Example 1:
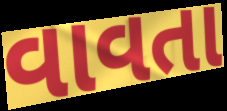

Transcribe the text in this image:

વાવતા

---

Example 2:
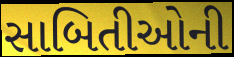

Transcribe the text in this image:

સાબિતીઓની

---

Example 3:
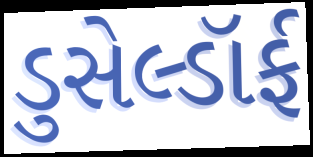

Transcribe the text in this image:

ડુસેલ્ડૉર્ફ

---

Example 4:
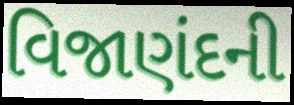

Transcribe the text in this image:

વિજાણંદની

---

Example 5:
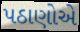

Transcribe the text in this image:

પઠાણોએ